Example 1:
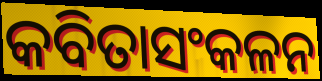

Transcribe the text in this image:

କବିତାସଂକଳନ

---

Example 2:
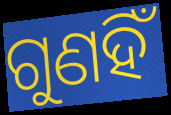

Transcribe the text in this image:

ଗୁଣହିଁ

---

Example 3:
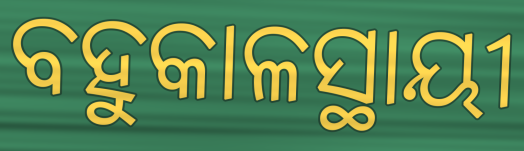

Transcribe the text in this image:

ବହୁକାଳସ୍ଥାୟୀ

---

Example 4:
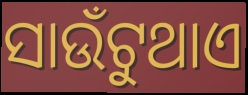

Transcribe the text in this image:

ସାଉଁଟୁଥାଏ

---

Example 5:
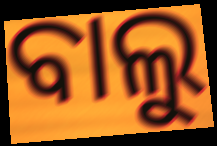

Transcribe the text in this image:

ବାଲୁ